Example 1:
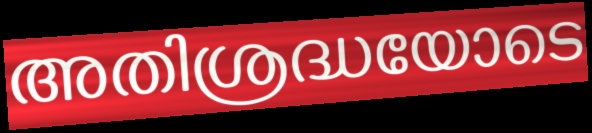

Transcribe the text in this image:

അതിശ്രദ്ധയോടെ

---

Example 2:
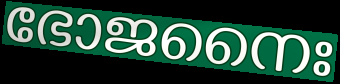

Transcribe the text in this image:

ഭോജനൈഃ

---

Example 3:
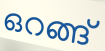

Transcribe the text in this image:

ഒറങ്ങ്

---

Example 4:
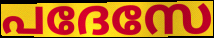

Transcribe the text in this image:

പദേസേ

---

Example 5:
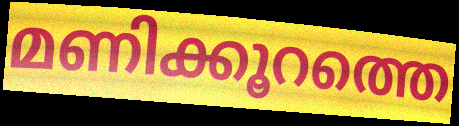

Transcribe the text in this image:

മണിക്കൂറത്തെ